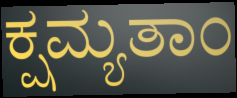
ಕ್ಷಮ್ಯತಾಂ